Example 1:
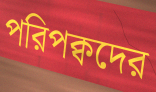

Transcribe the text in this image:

পরিপক্বদের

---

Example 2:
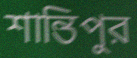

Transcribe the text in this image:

শান্তিপুর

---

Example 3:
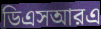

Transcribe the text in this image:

ডিএসআরএ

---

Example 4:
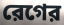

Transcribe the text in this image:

রেগের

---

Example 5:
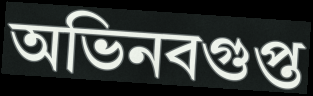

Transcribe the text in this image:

অভিনবগুপ্ত